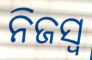
ନିଜସ୍ୱ